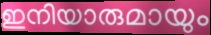
ഇനിയാരുമായും